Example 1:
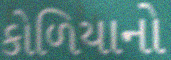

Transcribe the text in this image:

કોળિયાનો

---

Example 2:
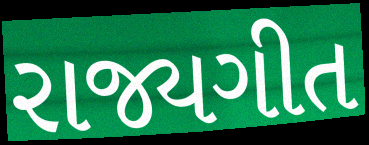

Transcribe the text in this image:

રાજ્યગીત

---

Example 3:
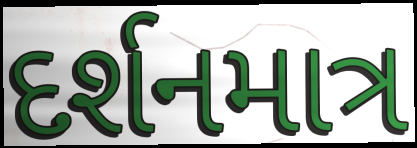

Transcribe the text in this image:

દર્શનમાત્ર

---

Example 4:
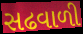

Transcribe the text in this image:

સઢવાળી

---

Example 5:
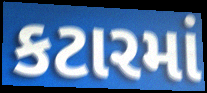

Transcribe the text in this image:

કટારમાં